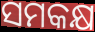
ସମକକ୍ଷ